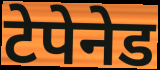
टेपेनेड